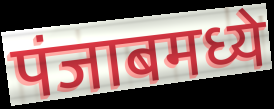
पंजाबमध्ये